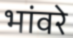
भांवरे